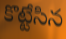
కొట్టేసిన